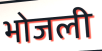
भोजली